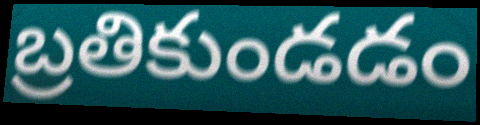
బ్రతికుండడం